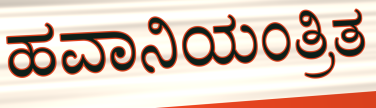
ಹವಾನಿಯಂತ್ರಿತ